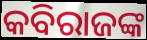
କବିରାଜଙ୍କ